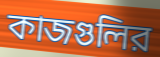
কাজগুলির